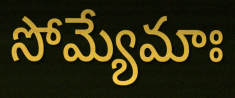
సోమ్యేమాః